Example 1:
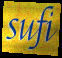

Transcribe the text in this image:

sufi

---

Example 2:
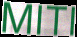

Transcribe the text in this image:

MITI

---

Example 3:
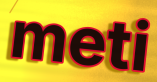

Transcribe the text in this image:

meti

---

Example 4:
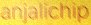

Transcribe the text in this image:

anjalichip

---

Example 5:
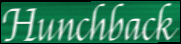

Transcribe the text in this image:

Hunchback